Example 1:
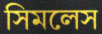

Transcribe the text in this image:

সিমলেস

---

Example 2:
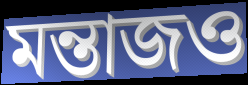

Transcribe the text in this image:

মন্তাজও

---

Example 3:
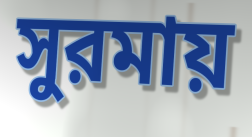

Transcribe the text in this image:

সুরমায়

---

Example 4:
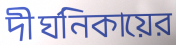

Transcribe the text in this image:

দীর্ঘনিকায়ের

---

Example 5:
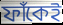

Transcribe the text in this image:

ফাঁকেই